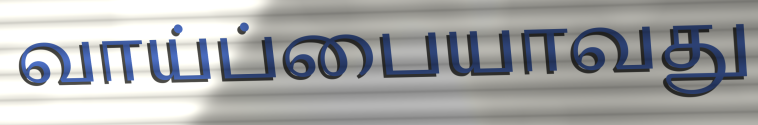
வாய்ப்பையாவது